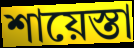
শায়েস্তা